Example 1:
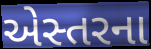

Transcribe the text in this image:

એસ્તરના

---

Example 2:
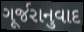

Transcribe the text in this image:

ગૂર્જરાનુવાદ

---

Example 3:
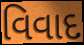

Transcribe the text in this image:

વિવાદ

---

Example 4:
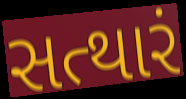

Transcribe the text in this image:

સત્થારં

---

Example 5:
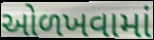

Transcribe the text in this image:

ઓળખવામાં